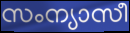
സംന്യാസീ